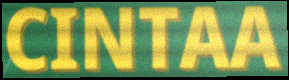
CINTAA